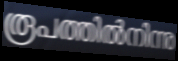
രൂപത്തിൽനിന്നു